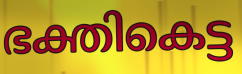
ഭക്തികെട്ട